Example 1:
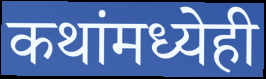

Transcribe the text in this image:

कथांमध्येही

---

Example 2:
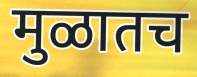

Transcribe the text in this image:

मुळातच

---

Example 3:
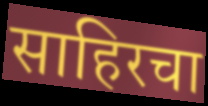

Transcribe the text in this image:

साहिरचा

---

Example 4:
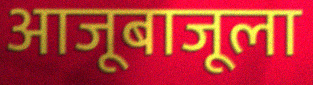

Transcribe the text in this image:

आजूबाजूला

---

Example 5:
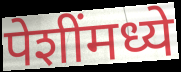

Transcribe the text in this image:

पेशींमध्ये